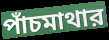
পাঁচমাথার